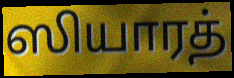
ஸியாரத்